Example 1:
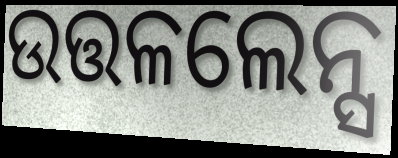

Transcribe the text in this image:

ଉତ୍ତଳଲେନ୍ସ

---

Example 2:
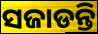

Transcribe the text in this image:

ସଜାଡନ୍ତି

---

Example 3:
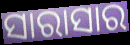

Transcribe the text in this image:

ସାରାସାର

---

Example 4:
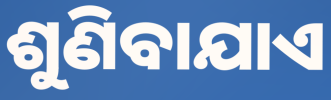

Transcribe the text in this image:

ଶୁଣିବାଯାଏ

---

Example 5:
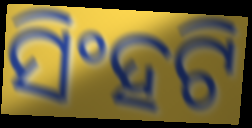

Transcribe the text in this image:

ସିଂହଟି